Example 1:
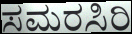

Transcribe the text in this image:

ಸಮರಸಿರಿ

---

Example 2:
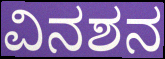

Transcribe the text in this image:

ವಿನಶನ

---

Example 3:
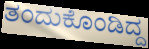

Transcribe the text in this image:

ತಂದುಕೊಂಡಿದ್ದ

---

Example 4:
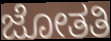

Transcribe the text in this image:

ಜೋತತಿ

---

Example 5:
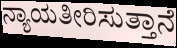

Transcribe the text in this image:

ನ್ಯಾಯತೀರಿಸುತ್ತಾನೆ